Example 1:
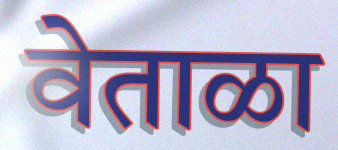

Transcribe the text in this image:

वेताळा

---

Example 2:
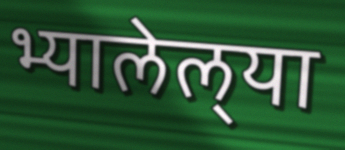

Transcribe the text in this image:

भ्यालेल्या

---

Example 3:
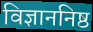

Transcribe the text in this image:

विज्ञाननिष्ठ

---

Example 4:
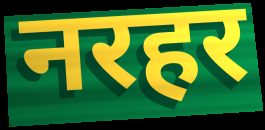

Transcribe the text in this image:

नरहर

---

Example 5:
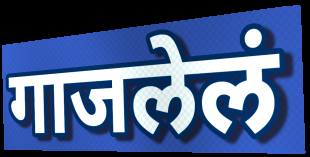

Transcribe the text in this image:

गाजलेलं